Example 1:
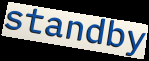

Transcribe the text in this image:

standby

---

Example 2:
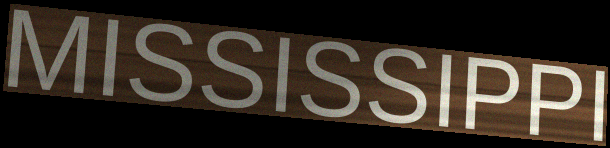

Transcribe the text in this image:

MISSISSIPPI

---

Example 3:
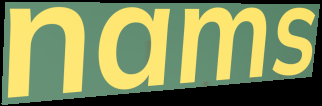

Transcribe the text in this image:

nams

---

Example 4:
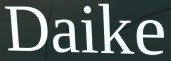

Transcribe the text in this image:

Daike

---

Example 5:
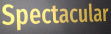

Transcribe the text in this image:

Spectacular